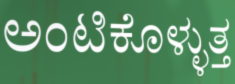
ಅಂಟಿಕೊಳ್ಳುತ್ತ